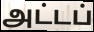
அட்டப்